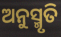
ଅନୁସ୍ମୃତି